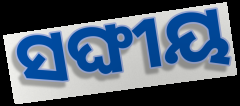
ସଙ୍ଘୀୟ